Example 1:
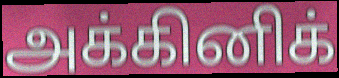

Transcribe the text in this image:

அக்கினிக்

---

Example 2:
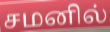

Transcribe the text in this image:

சமனில்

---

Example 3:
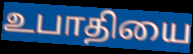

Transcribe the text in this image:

உபாதியை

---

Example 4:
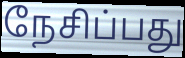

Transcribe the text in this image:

நேசிப்பது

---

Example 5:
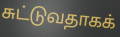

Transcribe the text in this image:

சுட்டுவதாகக்